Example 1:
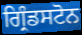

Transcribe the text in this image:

ਗ੍ਰਿੰਡਸਟੋਨ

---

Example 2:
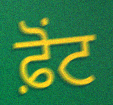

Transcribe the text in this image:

ਫ਼ੋਂਟ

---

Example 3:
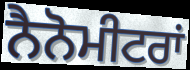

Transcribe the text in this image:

ਨੈਨੋਮੀਟਰਾਂ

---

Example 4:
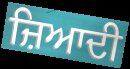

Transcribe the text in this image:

ਜ਼ਿਆਦੀ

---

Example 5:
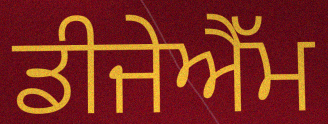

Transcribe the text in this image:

ਡੀਜੇਐੱਮ